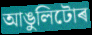
আঙুলিটোৰ